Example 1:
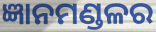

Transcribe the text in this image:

ଜ୍ଞାନମଣ୍ଡଳର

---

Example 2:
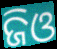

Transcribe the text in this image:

ଜିଓ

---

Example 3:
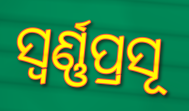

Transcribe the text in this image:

ସ୍ଵର୍ଣ୍ଣପ୍ରସୂ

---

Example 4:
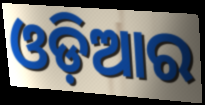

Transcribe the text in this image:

ଓଡ଼ିଆର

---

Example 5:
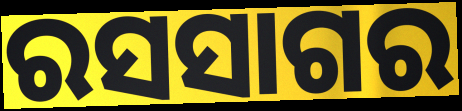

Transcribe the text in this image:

ରସସାଗର